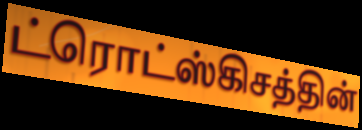
ட்ரொட்ஸ்கிசத்தின்